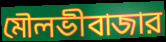
মৌলভীবাজার